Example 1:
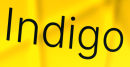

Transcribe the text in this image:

Indigo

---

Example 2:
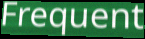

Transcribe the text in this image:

Frequent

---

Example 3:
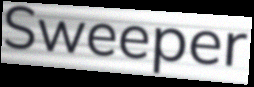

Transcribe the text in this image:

Sweeper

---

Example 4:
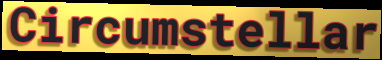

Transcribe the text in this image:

Circumstellar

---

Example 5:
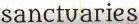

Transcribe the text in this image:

sanctuaries